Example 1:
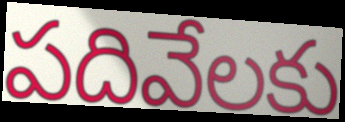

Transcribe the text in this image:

పదివేలకు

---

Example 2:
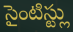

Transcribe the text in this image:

సైంటిస్ట్లు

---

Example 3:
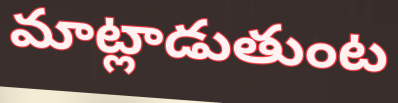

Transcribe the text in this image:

మాట్లాడుతుంట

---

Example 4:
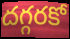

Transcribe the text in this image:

దగ్గరకో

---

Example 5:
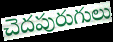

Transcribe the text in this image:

చెదపురుగులు